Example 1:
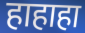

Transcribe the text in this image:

हाहाहा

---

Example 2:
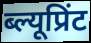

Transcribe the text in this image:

ब्ल्यूप्रिंट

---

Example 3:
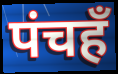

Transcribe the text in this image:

पंचहँ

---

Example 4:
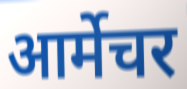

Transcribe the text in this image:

आर्मेचर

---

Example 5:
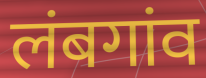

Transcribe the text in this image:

लंबगांव